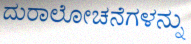
ದುರಾಲೋಚನೆಗಳನ್ನು